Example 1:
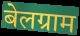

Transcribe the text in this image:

बेलग्राम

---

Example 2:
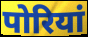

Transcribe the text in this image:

पोरियां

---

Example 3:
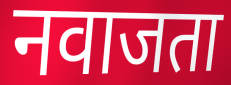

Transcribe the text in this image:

नवाजता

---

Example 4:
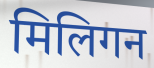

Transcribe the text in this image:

मिलिगन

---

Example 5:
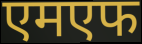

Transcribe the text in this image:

एमएफ